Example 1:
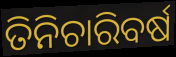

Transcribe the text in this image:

ତିନିଚାରିବର୍ଷ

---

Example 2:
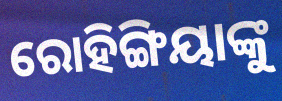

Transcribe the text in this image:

ରୋହିଙ୍ଗିୟାଙ୍କୁ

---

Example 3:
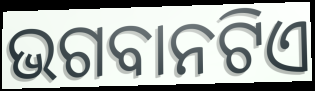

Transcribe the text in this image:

ଭଗବାନଟିଏ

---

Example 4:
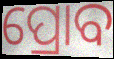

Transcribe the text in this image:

ପ୍ରୋବ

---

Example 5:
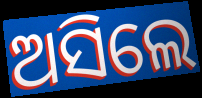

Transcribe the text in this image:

ଅସିଲେ